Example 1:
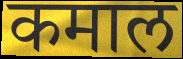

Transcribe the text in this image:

कमाल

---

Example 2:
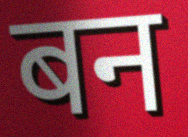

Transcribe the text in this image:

बन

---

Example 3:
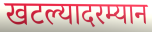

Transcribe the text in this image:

खटल्यादरम्यान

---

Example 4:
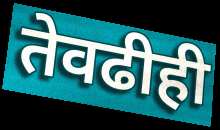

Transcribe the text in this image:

तेवढीही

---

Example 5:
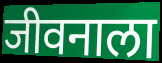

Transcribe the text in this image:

जीवनाला